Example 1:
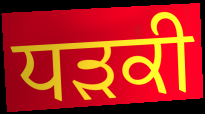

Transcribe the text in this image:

ਧੜਕੀ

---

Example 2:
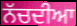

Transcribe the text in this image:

ਨੱਚਦੀਆ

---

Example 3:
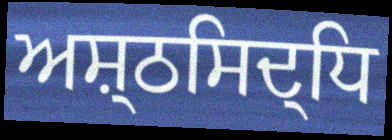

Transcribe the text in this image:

ਅਸ਼੍ਠਸਿਦ੍ਧਿ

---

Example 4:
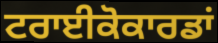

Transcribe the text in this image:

ਟਰਾਈਕੋਕਾਰਡਾਂ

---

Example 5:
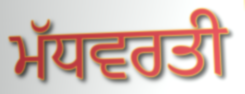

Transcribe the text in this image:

ਮੱਧਵਰਤੀ